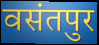
वसंतपुर